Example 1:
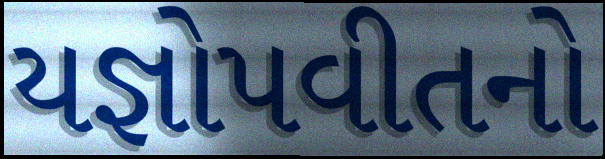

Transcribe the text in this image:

યજ્ઞોપવીતનો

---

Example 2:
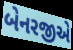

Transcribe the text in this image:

બેનરજીએ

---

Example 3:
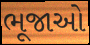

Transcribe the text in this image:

ભૂજાઓ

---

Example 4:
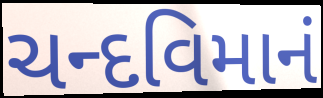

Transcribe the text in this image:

ચન્દવિમાનં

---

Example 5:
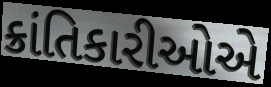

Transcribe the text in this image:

ક્રાંતિકારીઓએ